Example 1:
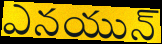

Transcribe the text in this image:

ఎనయున్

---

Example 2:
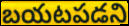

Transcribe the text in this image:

బయటపడని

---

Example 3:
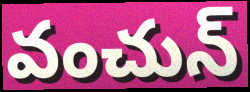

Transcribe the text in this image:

వంచున్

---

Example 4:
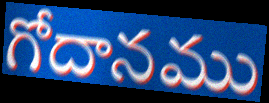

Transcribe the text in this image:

గోదానము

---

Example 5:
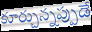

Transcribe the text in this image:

కూర్చున్నప్పుడే